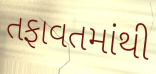
તફાવતમાંથી